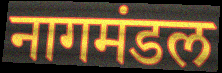
नागमंडल